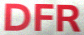
DFR